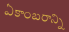
ఏకాంబరాన్ని